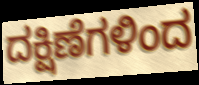
ದಕ್ಷಿಣೆಗಳಿಂದ